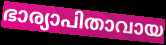
ഭാര്യാപിതാവായ